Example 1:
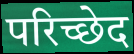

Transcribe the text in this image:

परिच्छेद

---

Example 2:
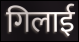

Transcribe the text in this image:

गिलाई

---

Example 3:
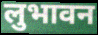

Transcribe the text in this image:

लुभावन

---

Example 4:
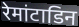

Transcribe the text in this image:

रेमांटाडिन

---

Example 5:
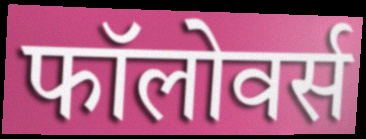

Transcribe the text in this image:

फॉलोवर्स